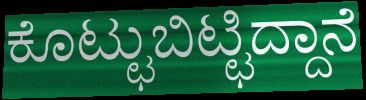
ಕೊಟ್ಟುಬಿಟ್ಟಿದ್ದಾನೆ